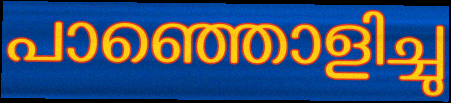
പാഞ്ഞൊളിച്ചു